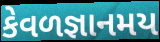
કેવળજ્ઞાનમય